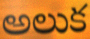
అలుక